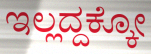
ಇಲ್ಲದ್ದಕ್ಕೋ